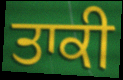
ਤਾਕੀ